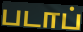
படாப்